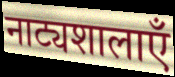
नाट्यशालाएँ